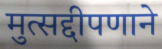
मुत्सद्दीपणाने